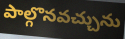
పాల్గొనవచ్చును